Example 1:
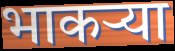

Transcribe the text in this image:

भाकऱ्या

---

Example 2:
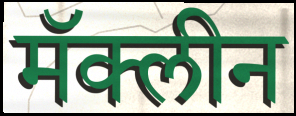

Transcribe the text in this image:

मॅक्लीन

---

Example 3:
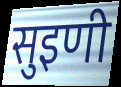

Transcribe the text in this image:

सुइणी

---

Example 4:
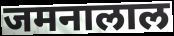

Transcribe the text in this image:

जमनालाल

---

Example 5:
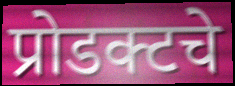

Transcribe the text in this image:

प्रोडक्टचे